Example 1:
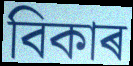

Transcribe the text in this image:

বিকাৰ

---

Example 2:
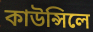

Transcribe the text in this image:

কাউন্সিলে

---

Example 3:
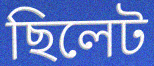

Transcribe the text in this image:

ছিলেট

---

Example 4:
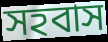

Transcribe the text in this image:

সহবাস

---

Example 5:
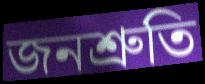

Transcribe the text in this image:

জনশ্ৰুতি